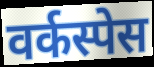
वर्कस्पेस